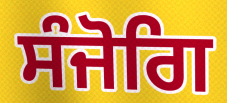
ਸੰਜੋਗਿ